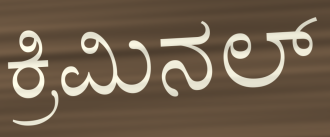
ಕ್ರಿಮಿನಲ್